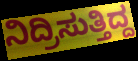
ನಿದ್ರಿಸುತ್ತಿದ್ದ